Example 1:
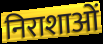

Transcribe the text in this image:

निराशाओं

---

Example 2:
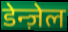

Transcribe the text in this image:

डेन्ज़ेल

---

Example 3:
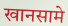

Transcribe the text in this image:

खानसामे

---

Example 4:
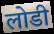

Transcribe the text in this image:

लोडी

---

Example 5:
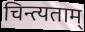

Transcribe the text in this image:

चिन्त्यताम्